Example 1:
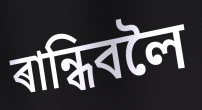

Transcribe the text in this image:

ৰান্ধিবলৈ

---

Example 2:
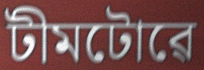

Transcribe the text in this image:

টীমটোৱে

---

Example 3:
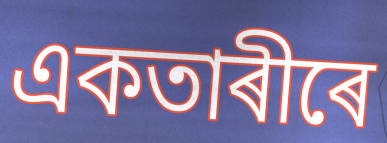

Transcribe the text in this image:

একতাৰীৰে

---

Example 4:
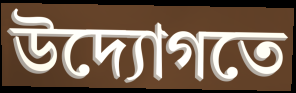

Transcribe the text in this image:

উদ্যোগতে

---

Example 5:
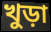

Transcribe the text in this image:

খুড়া